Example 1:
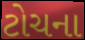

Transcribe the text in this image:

ટોચના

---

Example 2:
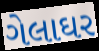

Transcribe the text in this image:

ગેલાઘર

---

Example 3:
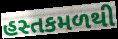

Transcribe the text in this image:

હસ્તકમળથી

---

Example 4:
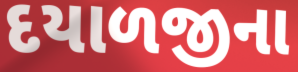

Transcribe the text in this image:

દયાળજીના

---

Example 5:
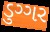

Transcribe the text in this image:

ડુગ્ગર